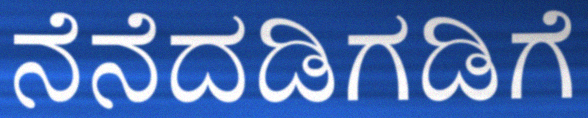
ನೆನೆದಡಿಗಡಿಗೆ